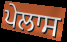
ਪੇਲਾਸ